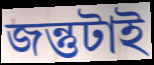
জন্তুটাই